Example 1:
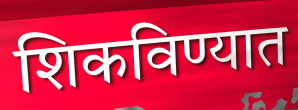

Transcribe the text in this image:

शिकविण्यात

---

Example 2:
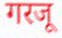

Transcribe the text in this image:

गरजू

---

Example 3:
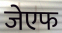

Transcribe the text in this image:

जेएफ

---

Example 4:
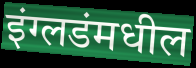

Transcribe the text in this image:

इंग्लडंमधील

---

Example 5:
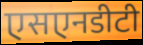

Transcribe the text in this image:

एसएनडीटी